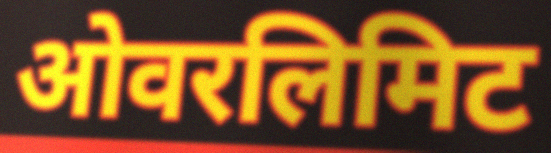
ओवरलिमिट